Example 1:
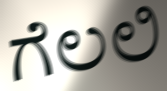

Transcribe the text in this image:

ಗೆಲಲಿ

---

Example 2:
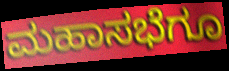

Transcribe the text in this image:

ಮಹಾಸಭೆಗೂ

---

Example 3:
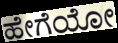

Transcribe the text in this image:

ಹೇಗೆಯೋ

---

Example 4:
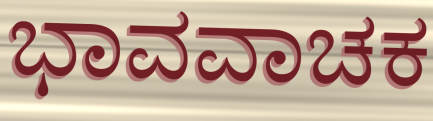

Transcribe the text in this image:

ಭಾವವಾಚಕ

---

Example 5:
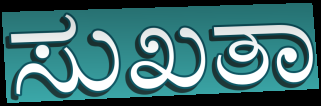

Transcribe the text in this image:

ಸುಖತಾ